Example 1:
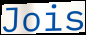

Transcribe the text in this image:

Jois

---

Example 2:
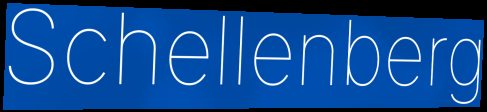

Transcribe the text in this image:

Schellenberg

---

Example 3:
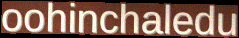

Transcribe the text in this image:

oohinchaledu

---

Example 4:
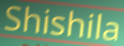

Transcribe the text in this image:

Shishila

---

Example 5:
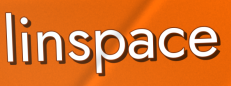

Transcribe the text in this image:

linspace